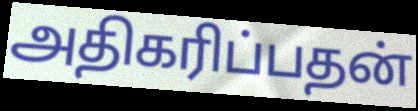
அதிகரிப்பதன்